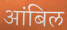
आंबिल